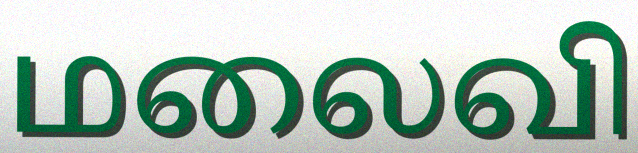
மலைவி